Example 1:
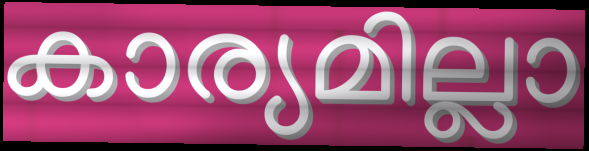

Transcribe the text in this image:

കാര്യമില്ലാ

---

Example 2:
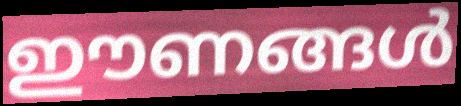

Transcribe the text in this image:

ഈണങ്ങൾ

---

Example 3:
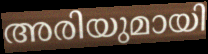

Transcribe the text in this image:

അരിയുമായി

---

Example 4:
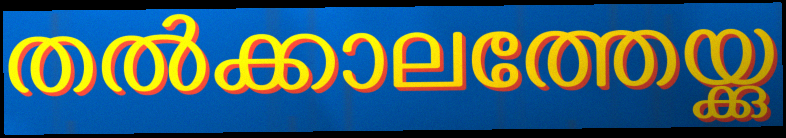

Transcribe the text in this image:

തൽക്കാലത്തേയ്ക്കു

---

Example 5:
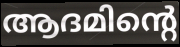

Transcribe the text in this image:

ആദമിന്റെ